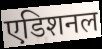
एडिशनल